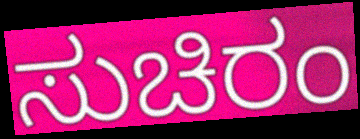
ಸುಚಿರಂ